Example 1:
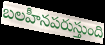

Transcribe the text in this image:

బలహీనపరుస్తుంది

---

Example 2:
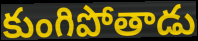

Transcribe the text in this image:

కుంగిపోతాడు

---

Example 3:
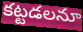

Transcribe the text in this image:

కట్టడలనూ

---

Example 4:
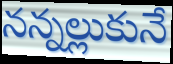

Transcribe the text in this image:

నన్నల్లుకునే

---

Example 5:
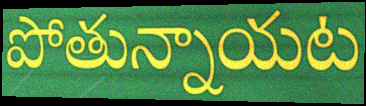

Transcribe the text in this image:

పోతున్నాయట